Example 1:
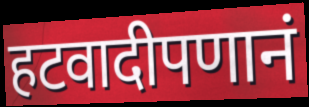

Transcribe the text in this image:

हटवादीपणानं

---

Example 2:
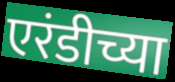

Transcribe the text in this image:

एरंडीच्या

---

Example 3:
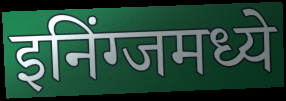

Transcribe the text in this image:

इनिंग्जमध्ये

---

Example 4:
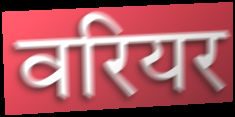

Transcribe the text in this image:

वरियर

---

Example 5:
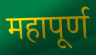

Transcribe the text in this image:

महापूर्ण